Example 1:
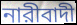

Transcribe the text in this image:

নারীবাদী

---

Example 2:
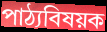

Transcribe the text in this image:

পাঠ্যবিষয়ক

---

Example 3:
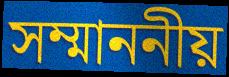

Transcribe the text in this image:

সম্মাননীয়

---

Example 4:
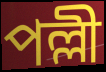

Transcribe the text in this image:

পল্লী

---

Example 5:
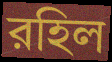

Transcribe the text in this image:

রহিল